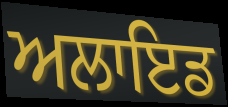
ਅਲਾਇਡ